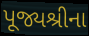
પૂજ્યશ્રીના